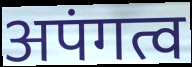
अपंगत्व